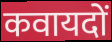
कवायदों